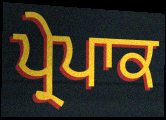
ਪ੍ਰੇਪਾਕ